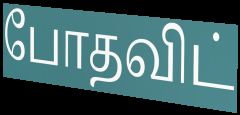
போதவிட்